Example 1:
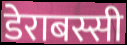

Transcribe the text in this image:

डेराबस्सी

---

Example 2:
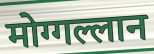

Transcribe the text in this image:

मोग्गल्लान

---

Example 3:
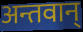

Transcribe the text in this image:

अन्तवान्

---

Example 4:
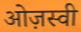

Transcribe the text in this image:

ओज़स्वी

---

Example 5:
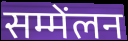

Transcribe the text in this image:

सम्मेंलन